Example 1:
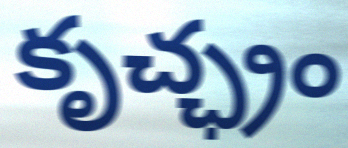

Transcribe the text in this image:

కృచ్ఛ్రం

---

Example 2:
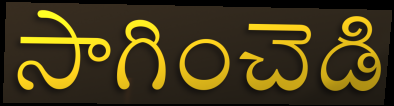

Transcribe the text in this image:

సాగించెడి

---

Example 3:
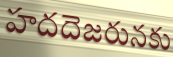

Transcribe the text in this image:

హదదెజరునకు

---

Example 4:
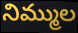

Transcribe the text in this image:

నిమ్ముల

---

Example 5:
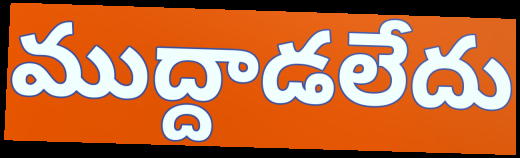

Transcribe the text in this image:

ముద్దాడలేదు